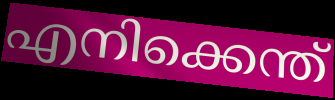
എനിക്കെന്ത്